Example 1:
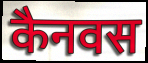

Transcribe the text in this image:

कैनवस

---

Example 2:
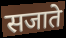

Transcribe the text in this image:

सजाते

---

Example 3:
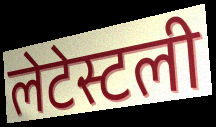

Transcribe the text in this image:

लेटेस्टली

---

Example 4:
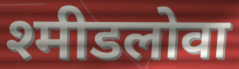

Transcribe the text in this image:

श्मीडलोवा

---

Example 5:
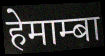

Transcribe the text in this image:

हेमाम्बा